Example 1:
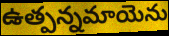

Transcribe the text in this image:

ఉత్పన్నమాయెను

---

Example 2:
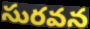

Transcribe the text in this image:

సురవన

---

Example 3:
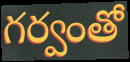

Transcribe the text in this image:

గర్వంతో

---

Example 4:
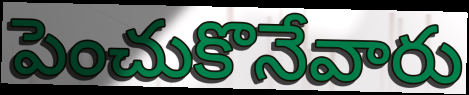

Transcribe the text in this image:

పెంచుకొనేవారు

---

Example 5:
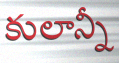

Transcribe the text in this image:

కులాన్నీ